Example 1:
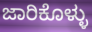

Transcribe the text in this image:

ಜಾರಿಕೊಳ್ಳು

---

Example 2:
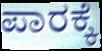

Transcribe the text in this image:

ಪಾರಕ್ಕೆ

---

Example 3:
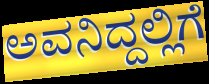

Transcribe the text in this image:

ಅವನಿದ್ದಲ್ಲಿಗೆ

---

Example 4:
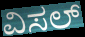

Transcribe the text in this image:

ವಿಸಲ್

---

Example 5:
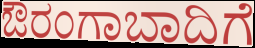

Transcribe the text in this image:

ಔರಂಗಾಬಾದಿಗೆ